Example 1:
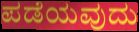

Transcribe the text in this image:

ಪಡೆಯವುದು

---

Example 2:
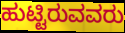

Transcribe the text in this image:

ಹುಟ್ಟಿರುವವರು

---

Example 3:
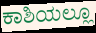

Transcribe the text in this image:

ಕಾಶಿಯಲ್ಲೂ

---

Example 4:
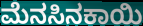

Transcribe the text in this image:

ಮೆನಸಿನಕಾಯಿ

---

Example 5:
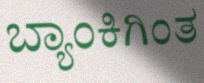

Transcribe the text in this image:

ಬ್ಯಾಂಕಿಗಿಂತ